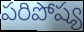
పరిపోష్య